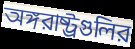
অঙ্গরাষ্ট্রগুলির